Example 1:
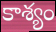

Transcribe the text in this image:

కాశ్యం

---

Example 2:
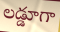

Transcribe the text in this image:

లడ్డూగా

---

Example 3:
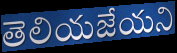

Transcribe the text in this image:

తెలియజేయని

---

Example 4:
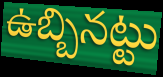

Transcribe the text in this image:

ఉబ్బినట్టు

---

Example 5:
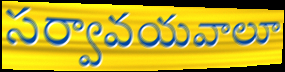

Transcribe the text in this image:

సర్వావయవాలూ